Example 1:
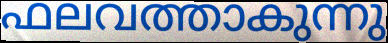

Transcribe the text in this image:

ഫലവത്താകുന്നു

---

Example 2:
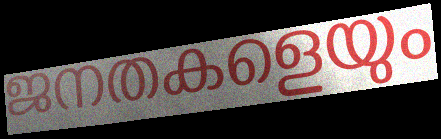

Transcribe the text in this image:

ജനതകളെയും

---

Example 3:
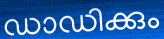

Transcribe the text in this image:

ഡാഡിക്കും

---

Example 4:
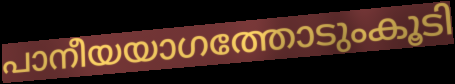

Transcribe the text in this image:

പാനീയയാഗത്തോടുംകൂടി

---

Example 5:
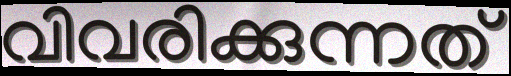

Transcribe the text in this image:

വിവരിക്കുന്നത്